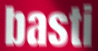
basti